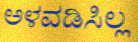
ಅಳವಡಿಸಿಲ್ಲ